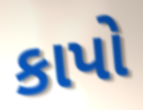
કાપો